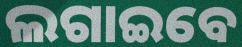
ଲଗାଇବେ